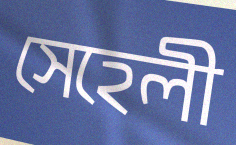
সেহেলী